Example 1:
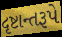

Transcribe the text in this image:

દૃષ્ટાન્તરૂપે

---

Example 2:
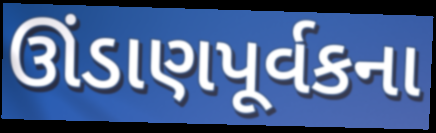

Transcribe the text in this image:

ઊંડાણપૂર્વકના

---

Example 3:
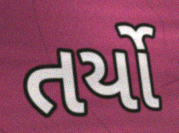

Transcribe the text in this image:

તર્યો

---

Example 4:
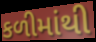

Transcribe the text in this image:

કળીમાંથી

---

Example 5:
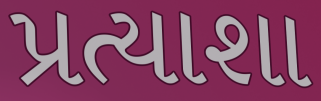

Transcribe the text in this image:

પ્રત્યાશા